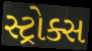
સ્ટ્રોક્સ